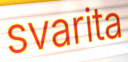
svarita